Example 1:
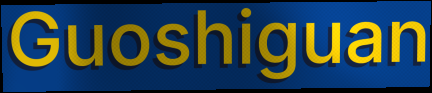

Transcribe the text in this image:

Guoshiguan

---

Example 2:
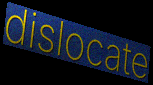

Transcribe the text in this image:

dislocate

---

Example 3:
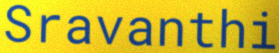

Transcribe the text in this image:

Sravanthi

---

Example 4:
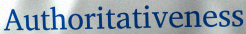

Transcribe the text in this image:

Authoritativeness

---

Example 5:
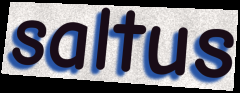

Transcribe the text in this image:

saltus